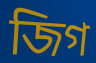
জিগ